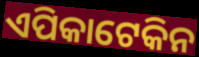
ଏପିକାଟେକିନ